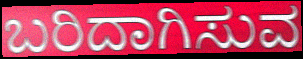
ಬರಿದಾಗಿಸುವ